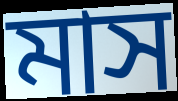
মাস